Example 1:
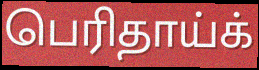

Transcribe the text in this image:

பெரிதாய்க்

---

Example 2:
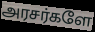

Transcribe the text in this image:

அரசர்களே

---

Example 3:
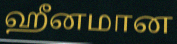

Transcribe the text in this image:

ஹீனமான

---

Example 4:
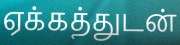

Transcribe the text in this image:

ஏக்கத்துடன்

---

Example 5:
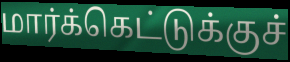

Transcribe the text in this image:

மார்க்கெட்டுக்குச்